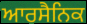
ਆਰਸੈਨਿਕ